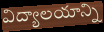
విద్యాలయాన్ని